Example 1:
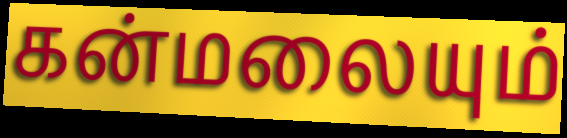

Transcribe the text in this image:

கன்மலையும்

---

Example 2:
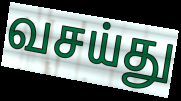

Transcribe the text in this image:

வசய்து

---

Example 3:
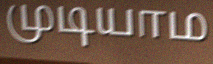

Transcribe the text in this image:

முடியாம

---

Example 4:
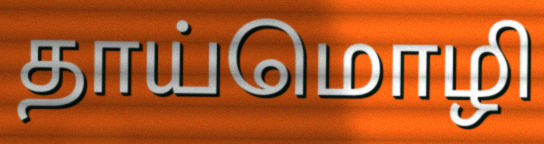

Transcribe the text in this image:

தாய்மொழி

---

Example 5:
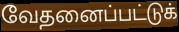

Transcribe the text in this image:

வேதனைப்பட்டுக்